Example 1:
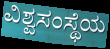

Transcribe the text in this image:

ವಿಶ್ವಸಂಸ್ಥೆಯ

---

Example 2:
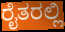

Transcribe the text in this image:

ರೈತರಲ್ಲಿ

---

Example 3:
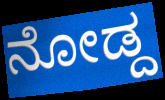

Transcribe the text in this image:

ನೋಡ್ದ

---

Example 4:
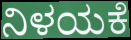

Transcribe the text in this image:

ನಿಳಯಕೆ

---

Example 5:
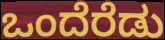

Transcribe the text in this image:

ಒಂದೆರೆಡು